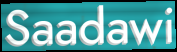
Saadawi